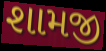
શામજી